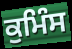
ਕੁਮਿੰਸ